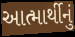
આત્માર્થીનું